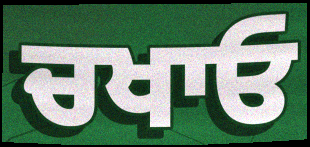
ਚਖਾਓ